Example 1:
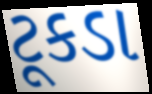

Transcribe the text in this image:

ટૂકડા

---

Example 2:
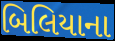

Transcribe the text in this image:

બિલિયાના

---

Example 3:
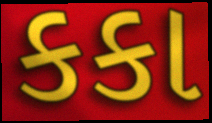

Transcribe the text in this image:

કકા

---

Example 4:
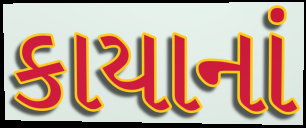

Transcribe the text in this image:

કાયાનાં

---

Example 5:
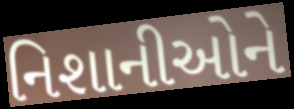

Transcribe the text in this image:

નિશાનીઓને